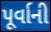
પૂર્વાની